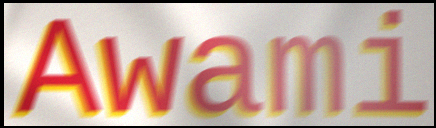
Awami